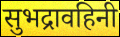
सुभद्रावहिनी